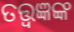
ତତ୍ତ୍ଵଜ୍ଞଙ୍କ